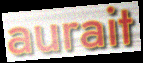
aurait